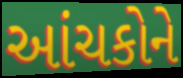
આંચકોને